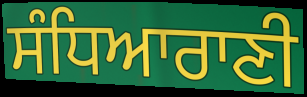
ਸੰਧਿਆਰਾਣੀ